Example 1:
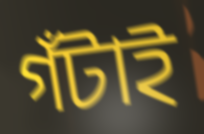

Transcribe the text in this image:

গঁটাই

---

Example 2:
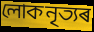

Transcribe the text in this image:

লোকনৃত্যৰ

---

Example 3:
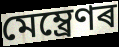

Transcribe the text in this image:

মেম্ব্ৰেণৰ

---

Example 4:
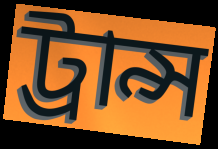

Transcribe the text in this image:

ট্ৰান্স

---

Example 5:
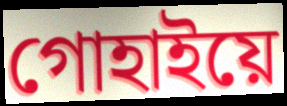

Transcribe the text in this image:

গোহাইয়ে